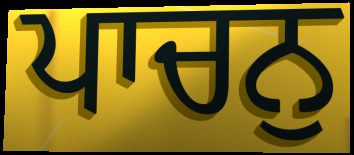
ਪਾਚਨੁ